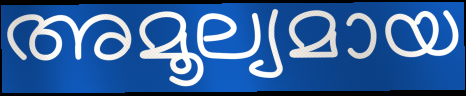
അമൂല്യമായ